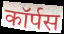
कॉर्पस